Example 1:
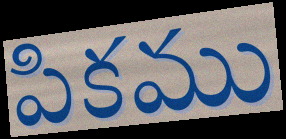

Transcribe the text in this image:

పికము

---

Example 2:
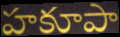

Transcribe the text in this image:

హకూపా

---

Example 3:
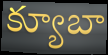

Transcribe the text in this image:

క్యూబా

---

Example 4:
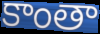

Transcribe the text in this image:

కాంతా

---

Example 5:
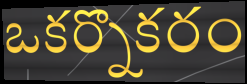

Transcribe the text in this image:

ఒకర్నొకరం